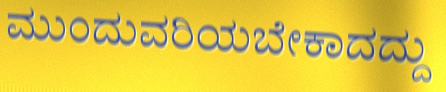
ಮುಂದುವರಿಯಬೇಕಾದದ್ದು